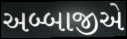
અબ્બાજીએ